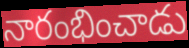
నారంభించాడు